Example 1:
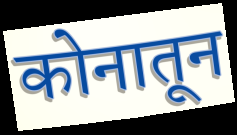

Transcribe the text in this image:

कोनातून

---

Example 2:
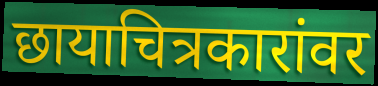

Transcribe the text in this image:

छायाचित्रकारांवर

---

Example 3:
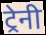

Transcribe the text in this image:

ट्रेनी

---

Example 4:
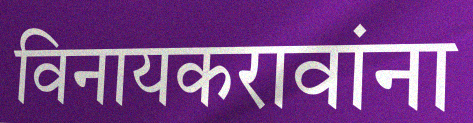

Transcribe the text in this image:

विनायकरावांना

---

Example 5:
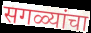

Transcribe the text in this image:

सगळ्यांचा